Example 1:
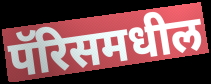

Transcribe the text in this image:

पॅरिसमधील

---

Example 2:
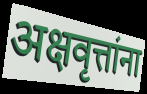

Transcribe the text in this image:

अक्षवृत्तांना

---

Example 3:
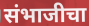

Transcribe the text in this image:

संभाजीचा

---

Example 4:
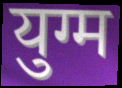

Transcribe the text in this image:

युग्म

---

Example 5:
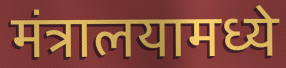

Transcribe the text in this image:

मंत्रालयामध्ये